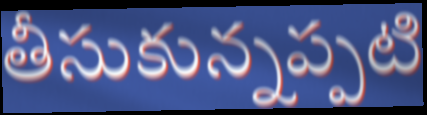
తీసుకున్నప్పటి